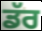
ਡੱਰ